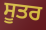
ਸੂਤਰ